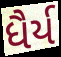
ધૈર્ય